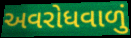
અવરોધવાળું